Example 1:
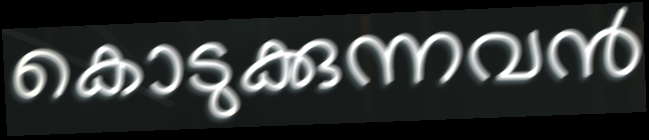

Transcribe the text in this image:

കൊടുക്കുന്നവൻ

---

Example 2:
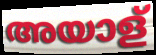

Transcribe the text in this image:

അയാള്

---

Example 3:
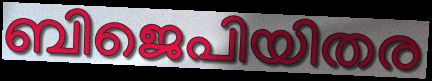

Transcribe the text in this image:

ബിജെപിയിതര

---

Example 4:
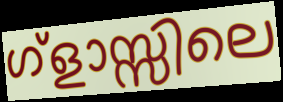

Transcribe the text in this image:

ഗ്ളാസ്സിലെ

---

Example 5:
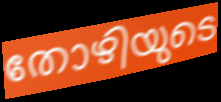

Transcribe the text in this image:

തോഴിയുടെ